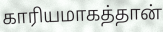
காரியமாகத்தான்